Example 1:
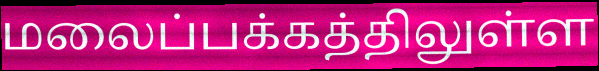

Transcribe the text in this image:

மலைப்பக்கத்திலுள்ள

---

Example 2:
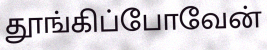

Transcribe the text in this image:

தூங்கிப்போவேன்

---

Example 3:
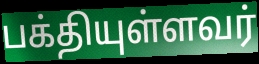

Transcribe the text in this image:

பக்தியுள்ளவர்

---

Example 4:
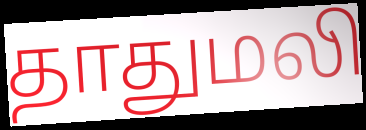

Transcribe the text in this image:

தாதுமலி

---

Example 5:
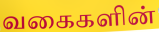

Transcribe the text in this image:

வகைகளின்